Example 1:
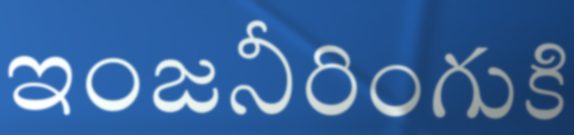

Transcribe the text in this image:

ఇంజనీరింగుకి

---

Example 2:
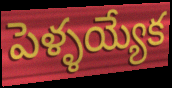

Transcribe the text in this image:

పెళ్ళయ్యేక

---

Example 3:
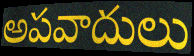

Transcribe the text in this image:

అపవాదులు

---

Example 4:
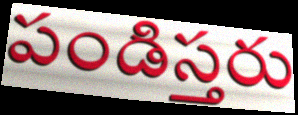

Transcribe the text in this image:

పండిస్తరు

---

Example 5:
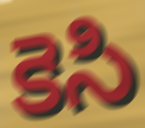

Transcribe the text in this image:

కెసి